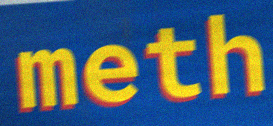
meth